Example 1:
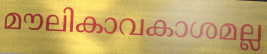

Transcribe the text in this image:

മൗലികാവകാശമല്ല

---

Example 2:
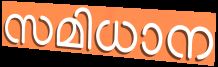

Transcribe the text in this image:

സമിധാന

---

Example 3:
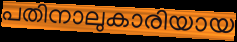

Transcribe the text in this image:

പതിനാലുകാരിയായ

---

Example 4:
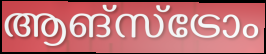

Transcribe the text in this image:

ആങ്സ്ട്രോം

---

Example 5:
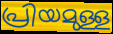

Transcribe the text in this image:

പ്രിയമുള്ള